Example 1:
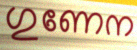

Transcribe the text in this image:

ഗുണേന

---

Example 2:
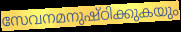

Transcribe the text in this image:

സേവനമനുഷ്ഠിക്കുകയും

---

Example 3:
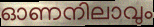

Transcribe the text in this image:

ഓണനിലാവും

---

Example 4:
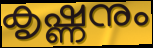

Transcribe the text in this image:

കൃഷ്ണനും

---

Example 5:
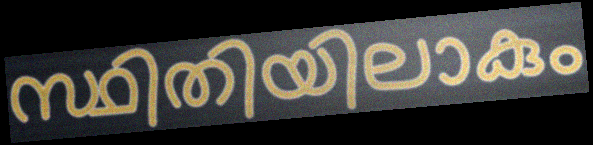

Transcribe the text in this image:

സ്ഥിതിയിലാകും